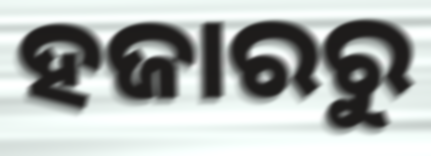
ହଜାରରୁ